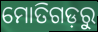
ମୋତିଗଡ଼ରୁ